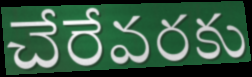
చేరేవరకు